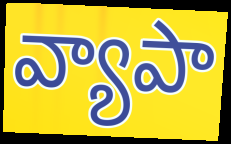
వ్యాపా